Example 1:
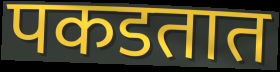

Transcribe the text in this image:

पकडतात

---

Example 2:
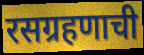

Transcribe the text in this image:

रसग्रहणाची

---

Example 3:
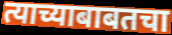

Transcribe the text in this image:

त्याच्याबाबतचा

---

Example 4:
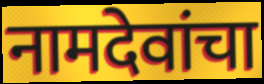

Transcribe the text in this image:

नामदेवांचा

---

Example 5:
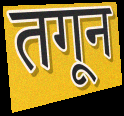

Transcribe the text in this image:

तगून